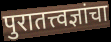
पुरातत्त्वज्ञांचा